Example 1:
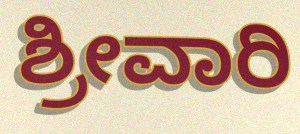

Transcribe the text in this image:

ಶ್ರೀವಾರಿ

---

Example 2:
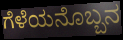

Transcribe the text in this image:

ಗೆಳೆಯನೊಬ್ಬನ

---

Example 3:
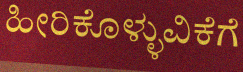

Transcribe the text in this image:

ಹೀರಿಕೊಳ್ಳುವಿಕೆಗೆ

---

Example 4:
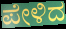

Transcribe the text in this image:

ಪೇಳಿದ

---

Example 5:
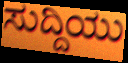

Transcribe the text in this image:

ಸುದ್ದಿಯು